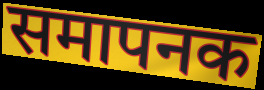
समापनक